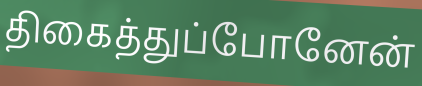
திகைத்துப்போனேன்